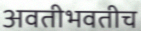
अवतीभवतीच